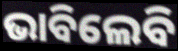
ଭାବିଲେବି